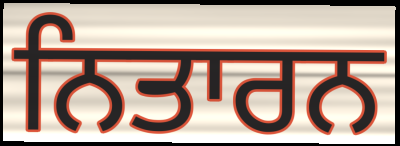
ਨਿਤਾਰਨ